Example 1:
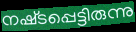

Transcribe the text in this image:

നഷ്‌ടപ്പെട്ടിരുന്നു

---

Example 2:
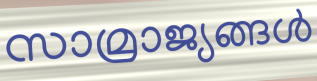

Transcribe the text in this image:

സാമ്രാജ്യങ്ങൾ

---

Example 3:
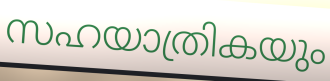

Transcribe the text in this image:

സഹയാത്രികയും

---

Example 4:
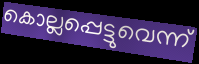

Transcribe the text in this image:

കൊല്ലപ്പെട്ടുവെന്ന്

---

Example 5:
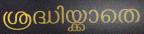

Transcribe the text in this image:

ശ്രദ്ധിയ്ക്കാതെ